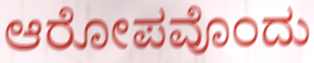
ಆರೋಪವೊಂದು